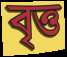
বৃত্ত